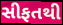
સીફતથી